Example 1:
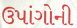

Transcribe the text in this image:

ઉપાંગોની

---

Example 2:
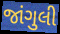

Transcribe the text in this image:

જાંગુલી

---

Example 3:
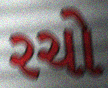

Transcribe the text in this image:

રચો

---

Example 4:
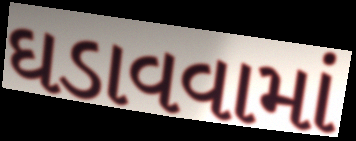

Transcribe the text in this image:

ઘડાવવામાં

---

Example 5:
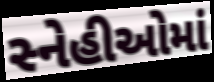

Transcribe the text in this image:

સ્નેહીઓમાં